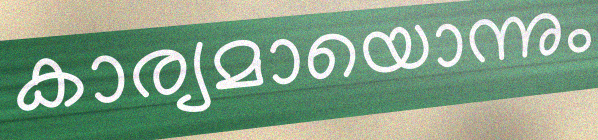
കാര്യമായൊന്നും